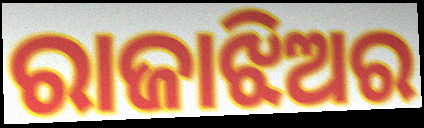
ରାଜାଝିଅର